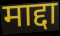
माद्दा